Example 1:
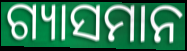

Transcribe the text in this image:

ଗ୍ୟାସମାନ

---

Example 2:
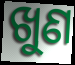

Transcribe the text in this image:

ଖୁଣ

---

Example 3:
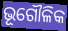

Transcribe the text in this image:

ଭୂଗୌଳିକ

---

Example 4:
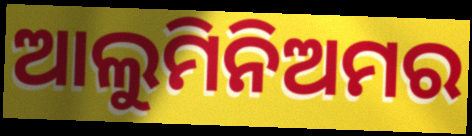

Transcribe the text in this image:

ଆଲୁମିନିଅମର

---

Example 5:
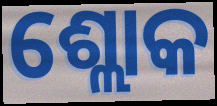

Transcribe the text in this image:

ଶ୍ଲୋକ